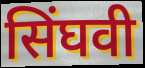
सिंघवी